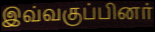
இவ்வகுப்பினர்